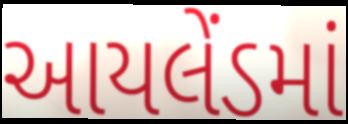
આયલેંડમાં